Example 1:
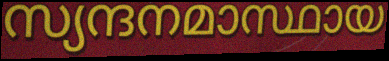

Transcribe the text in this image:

സ്യന്ദനമാസ്ഥായ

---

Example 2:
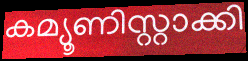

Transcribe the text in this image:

കമ്യൂണിസ്റ്റാക്കി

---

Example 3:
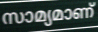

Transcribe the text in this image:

സാമ്യമാണ്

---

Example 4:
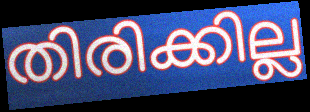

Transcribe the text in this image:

തിരിക്കില്ല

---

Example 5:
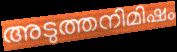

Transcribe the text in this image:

അടുത്തനിമിഷം